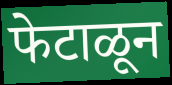
फेटाळून